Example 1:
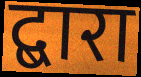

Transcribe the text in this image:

द्बारा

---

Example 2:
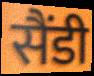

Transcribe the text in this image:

सैंडी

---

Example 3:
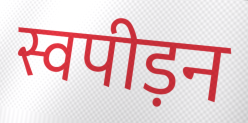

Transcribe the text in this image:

स्वपीड़न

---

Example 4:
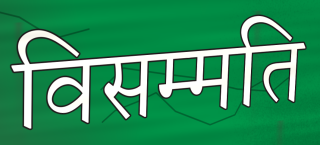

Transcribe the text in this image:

विसम्मति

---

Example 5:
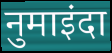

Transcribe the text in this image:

नुमाइंदा